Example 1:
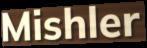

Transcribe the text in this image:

Mishler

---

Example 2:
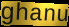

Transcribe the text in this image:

ghanu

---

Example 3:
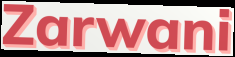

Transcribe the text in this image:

Zarwani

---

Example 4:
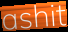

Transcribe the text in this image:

ashit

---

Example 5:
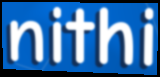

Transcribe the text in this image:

nithi